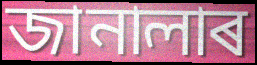
জানালাৰ